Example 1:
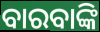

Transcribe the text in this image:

ବାରବାଙ୍କି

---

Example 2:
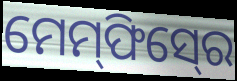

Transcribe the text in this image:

ମେମ୍‍ଫିସ୍‍ରେ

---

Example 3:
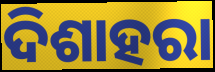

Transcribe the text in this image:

ଦିଶାହରା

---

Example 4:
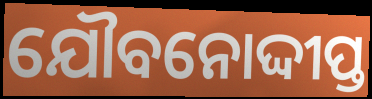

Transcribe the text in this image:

ଯୌବନୋଦ୍ଦୀପ୍ତ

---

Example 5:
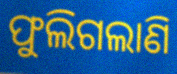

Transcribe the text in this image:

ଫୁଲିଗଲାଣି